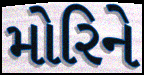
મોરિને